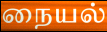
நையல்